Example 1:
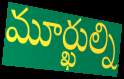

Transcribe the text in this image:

మూర్ఖుల్ని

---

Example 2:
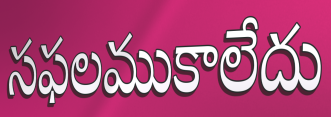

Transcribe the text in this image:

సఫలముకాలేదు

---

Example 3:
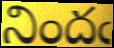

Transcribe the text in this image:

నిందఁ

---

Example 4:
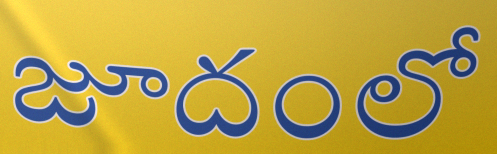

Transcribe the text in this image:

జూదంలో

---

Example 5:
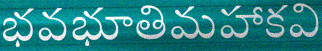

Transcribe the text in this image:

భవభూతిమహాకవి